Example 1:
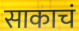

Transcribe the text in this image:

साकाचं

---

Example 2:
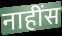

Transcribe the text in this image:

नाहींस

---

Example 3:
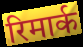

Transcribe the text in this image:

रिमार्क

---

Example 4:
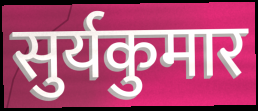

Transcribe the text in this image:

सुर्यकुमार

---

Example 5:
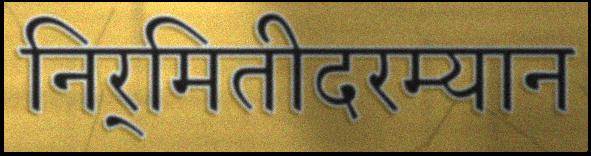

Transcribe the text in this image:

निर्मितीदरम्यान